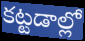
కట్టడాల్లో